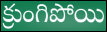
క్రుంగిపోయి